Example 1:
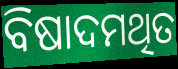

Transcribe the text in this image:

ବିଷାଦମଥିତ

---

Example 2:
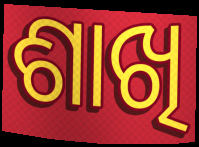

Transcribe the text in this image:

ଶାଖି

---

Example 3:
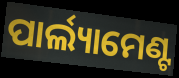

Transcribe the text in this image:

ପାର୍ଲ୍ୟାମେଣ୍ଟ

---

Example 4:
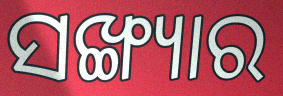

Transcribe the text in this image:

ସଙ୍ଖ୍ୟାର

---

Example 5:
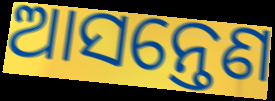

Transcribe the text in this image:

ଆସନ୍ତେଣ